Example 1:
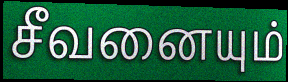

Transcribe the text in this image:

சீவனையும்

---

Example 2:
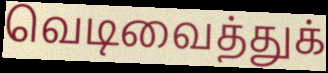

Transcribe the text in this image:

வெடிவைத்துக்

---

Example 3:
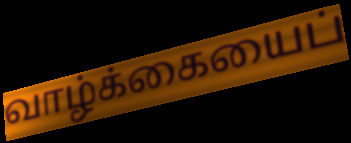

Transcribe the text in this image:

வாழ்க்கையைப்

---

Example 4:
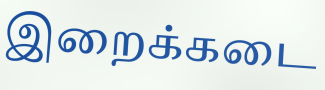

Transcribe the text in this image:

இறைக்கடை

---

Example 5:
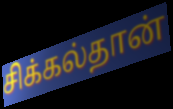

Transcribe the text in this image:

சிக்கல்தான்